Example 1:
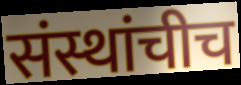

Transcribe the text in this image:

संस्थांचीच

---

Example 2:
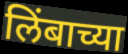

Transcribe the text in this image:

लिंबाच्या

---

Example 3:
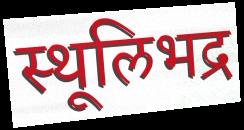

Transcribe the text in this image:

स्थूलिभद्र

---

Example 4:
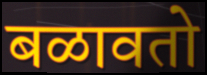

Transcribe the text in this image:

बळावतो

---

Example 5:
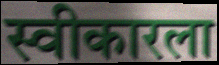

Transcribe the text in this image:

स्वीकारला